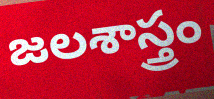
జలశాస్త్రం